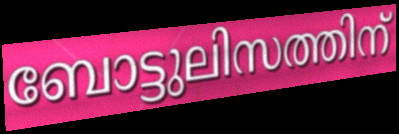
ബോട്ടുലിസത്തിന്